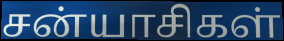
சன்யாசிகள்